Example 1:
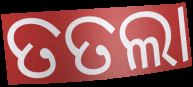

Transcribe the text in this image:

ତତଲା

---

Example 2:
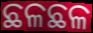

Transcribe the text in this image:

ଛଳଛଳ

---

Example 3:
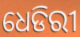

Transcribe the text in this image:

ଧେଡିରୀ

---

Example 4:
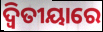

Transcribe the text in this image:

ଦ୍ଵିତୀୟାରେ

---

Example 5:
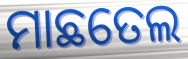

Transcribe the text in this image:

ମାଛତେଲ